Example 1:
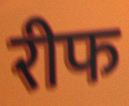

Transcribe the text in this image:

रीफ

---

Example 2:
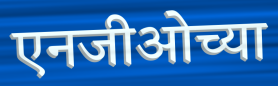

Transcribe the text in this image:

एनजीओच्या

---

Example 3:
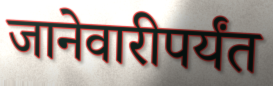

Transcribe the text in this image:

जानेवारीपर्यंत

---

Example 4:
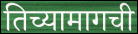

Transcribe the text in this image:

तिच्यामागची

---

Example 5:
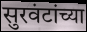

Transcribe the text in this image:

सुरवंटांच्या